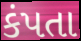
કંપતા